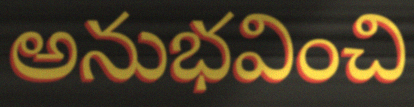
అనుభవించి